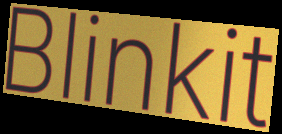
Blinkit